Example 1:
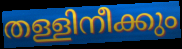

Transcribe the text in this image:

തള്ളിനീക്കും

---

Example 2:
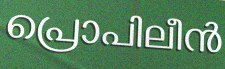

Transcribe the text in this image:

പ്രൊപിലീൻ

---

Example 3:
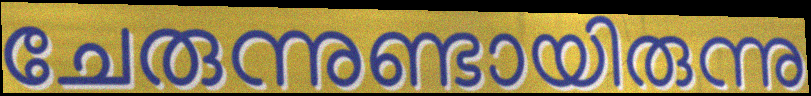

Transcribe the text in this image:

ചേരുന്നുണ്ടായിരുന്നു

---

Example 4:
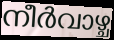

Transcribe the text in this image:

നീർവാഴ്ച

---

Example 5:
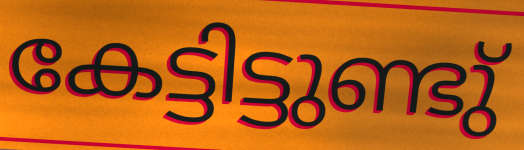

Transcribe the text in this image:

കേട്ടിട്ടുണ്ടു്